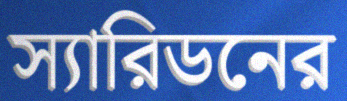
স্যারিডনের